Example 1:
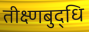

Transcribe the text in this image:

तीक्ष्णबुद्धि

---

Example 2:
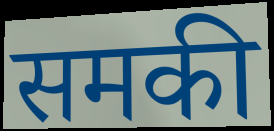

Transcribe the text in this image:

समकी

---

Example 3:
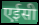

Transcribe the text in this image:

एईसी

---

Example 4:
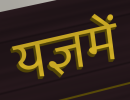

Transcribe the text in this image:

यज्ञमें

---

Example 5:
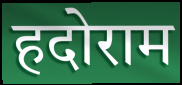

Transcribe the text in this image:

हदोराम